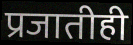
प्रजातीही